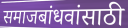
समाजबांधवांसाठी